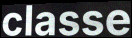
classe